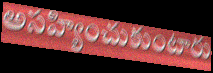
అసహ్యించుకుంటారు